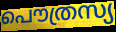
പൌത്രസ്യ